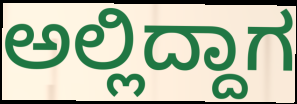
ಅಲ್ಲಿದ್ದಾಗ